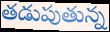
తడుపుతున్న